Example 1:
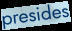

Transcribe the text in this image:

presides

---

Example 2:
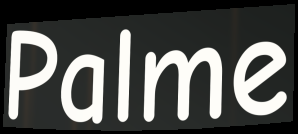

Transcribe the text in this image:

Palme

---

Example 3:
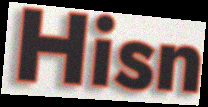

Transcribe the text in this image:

Hisn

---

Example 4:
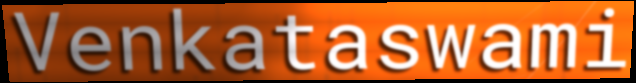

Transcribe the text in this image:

Venkataswami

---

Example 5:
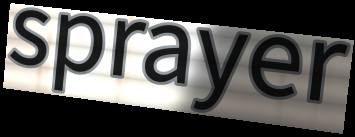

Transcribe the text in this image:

sprayer